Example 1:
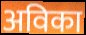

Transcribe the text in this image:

अविका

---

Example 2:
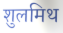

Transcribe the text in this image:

शुलमिथ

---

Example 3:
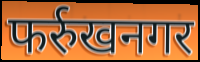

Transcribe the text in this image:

फर्रुखनगर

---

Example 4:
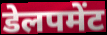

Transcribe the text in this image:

डेलपमेंट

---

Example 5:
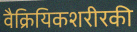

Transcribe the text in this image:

वैक्रियिकशरीरकी